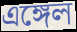
এঙ্গেল